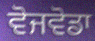
ਵੋਜਵੋਡਾ